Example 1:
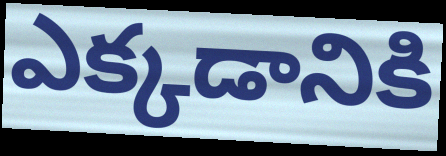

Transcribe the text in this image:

ఎక్కడానికి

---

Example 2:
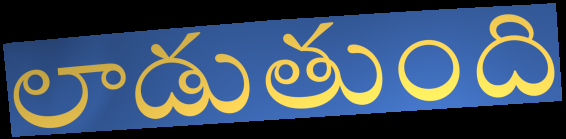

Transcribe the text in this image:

లాడుతుంది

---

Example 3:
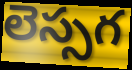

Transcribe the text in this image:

లెస్సగ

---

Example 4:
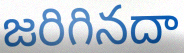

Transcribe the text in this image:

జరిగినదా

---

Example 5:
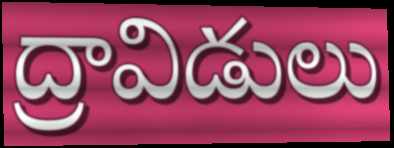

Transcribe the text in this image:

ద్రావిడులు